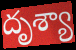
దృశ్యా